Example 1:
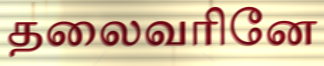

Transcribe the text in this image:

தலைவரினே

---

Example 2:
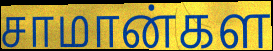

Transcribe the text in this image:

சாமான்கள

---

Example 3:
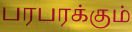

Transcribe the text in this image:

பரபரக்கும்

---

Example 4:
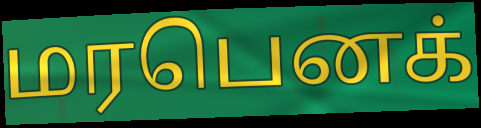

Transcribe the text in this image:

மரபெனக்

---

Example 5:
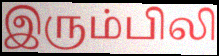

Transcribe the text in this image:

இரும்பிலி